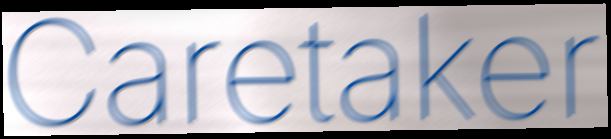
Caretaker